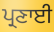
ਪ੍ਰਣਾਈ